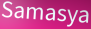
Samasya